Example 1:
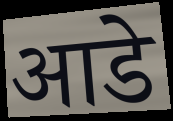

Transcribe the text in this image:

आडे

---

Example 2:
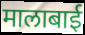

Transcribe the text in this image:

मालाबाई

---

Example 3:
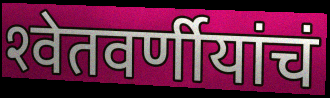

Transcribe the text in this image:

श्वेतवर्णीयांचं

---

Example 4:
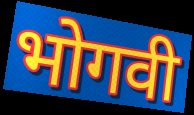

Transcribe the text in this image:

भोगवी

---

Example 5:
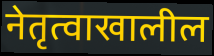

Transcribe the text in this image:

नेतृत्वाखालील